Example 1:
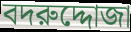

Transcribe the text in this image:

বদরুদ্দোজা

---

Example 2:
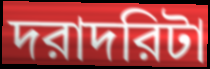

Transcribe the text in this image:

দরাদরিটা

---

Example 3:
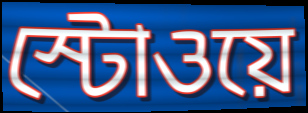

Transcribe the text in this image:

স্টোওয়ে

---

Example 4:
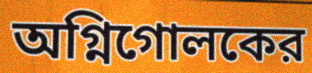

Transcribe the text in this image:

অগ্নিগোলকের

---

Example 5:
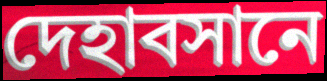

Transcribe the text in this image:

দেহাবসানে